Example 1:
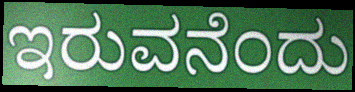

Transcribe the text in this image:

ಇರುವನೆಂದು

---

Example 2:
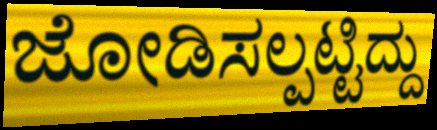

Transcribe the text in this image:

ಜೋಡಿಸಲ್ಪಟ್ಟಿದ್ದು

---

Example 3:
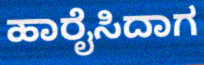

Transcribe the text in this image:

ಹಾರೈಸಿದಾಗ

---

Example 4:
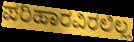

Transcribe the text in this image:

ಪರಿಹಾರವಿರಲಿಲ್ಲ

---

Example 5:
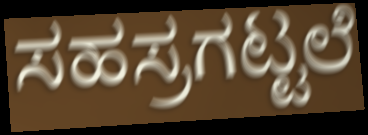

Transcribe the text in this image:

ಸಹಸ್ರಗಟ್ಟಲೆ